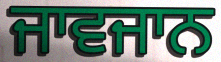
ਜਾਵਜਾਨ